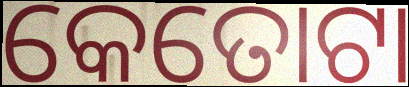
କେତୋଟା